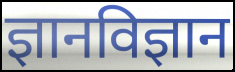
ज्ञानविज्ञान